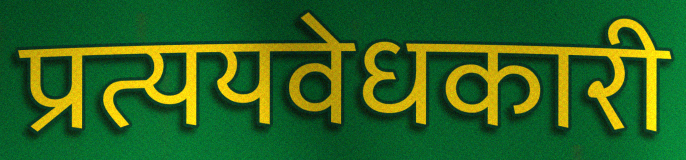
प्रत्ययवेधकारी